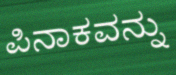
ಪಿನಾಕವನ್ನು